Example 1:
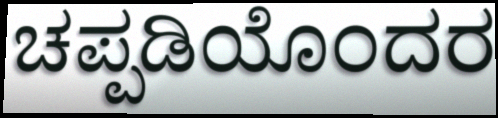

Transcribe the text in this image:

ಚಪ್ಪಡಿಯೊಂದರ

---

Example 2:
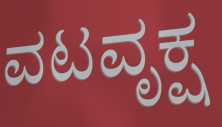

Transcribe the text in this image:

ವಟವೃಕ್ಷ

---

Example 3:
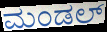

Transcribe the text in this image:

ಮಂಡಲ್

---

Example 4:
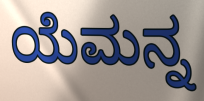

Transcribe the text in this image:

ಯೆಮನ್ನ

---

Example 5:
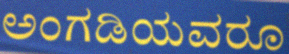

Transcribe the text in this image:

ಅಂಗಡಿಯವರೂ